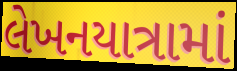
લેખનયાત્રામાં